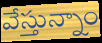
వేస్తున్నాం